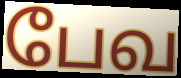
பேவ